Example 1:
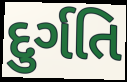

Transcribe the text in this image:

દુર્ગતિ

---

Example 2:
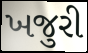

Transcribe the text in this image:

ખજુરી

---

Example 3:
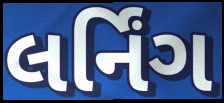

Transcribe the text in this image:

લર્નિંગ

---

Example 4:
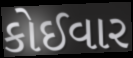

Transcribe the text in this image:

કોઈવાર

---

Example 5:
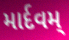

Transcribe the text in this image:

માર્દવમ્